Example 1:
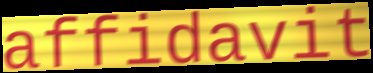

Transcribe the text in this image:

affidavit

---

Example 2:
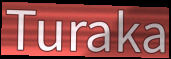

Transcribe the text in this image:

Turaka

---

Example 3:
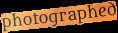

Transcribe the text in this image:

photographed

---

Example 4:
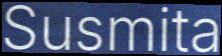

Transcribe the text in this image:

Susmita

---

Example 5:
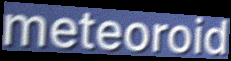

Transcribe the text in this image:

meteoroid